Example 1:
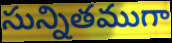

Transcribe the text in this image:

సున్నితముగా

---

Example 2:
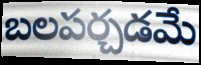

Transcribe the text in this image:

బలపర్చడమే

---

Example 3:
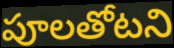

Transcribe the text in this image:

పూలతోటని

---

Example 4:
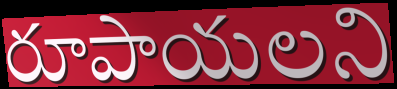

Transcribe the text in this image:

రూపాయలని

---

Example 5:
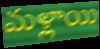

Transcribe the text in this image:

మళ్లాయి